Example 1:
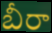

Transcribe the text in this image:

బీరా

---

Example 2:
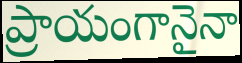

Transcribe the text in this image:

ప్రాయంగానైనా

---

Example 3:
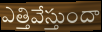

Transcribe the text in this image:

ఎత్తివేస్తుందా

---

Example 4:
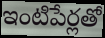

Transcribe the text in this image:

ఇంటిపేర్లతో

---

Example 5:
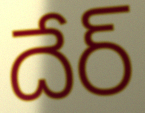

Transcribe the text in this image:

దేర్